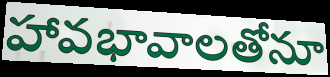
హావభావాలతోనూ